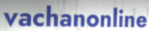
vachanonline